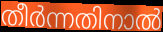
തീർന്നതിനാൽ